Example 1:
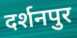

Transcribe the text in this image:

दर्शनपुर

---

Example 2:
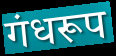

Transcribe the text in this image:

गंधरूप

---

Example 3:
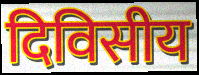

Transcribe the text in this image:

दिविसीय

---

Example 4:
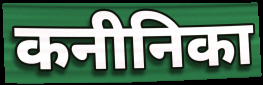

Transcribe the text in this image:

कनीनिका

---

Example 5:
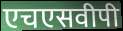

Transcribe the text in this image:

एचएसवीपी